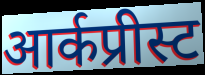
आर्कप्रीस्ट